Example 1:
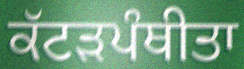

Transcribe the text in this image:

ਕੱਟੜਪੰਥੀਤਾ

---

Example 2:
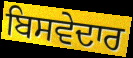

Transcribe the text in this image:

ਬਿਸਵੇਦਾਰ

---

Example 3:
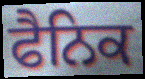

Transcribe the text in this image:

ਫੈਨਿਕ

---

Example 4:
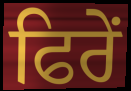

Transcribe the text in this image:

ਫਿਰੇਂ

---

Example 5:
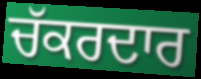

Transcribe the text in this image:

ਚੱਕਰਦਾਰ